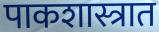
पाकशास्त्रात